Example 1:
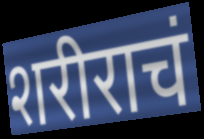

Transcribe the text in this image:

शरीराचं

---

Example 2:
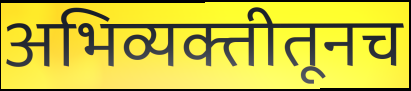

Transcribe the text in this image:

अभिव्यक्तीतूनच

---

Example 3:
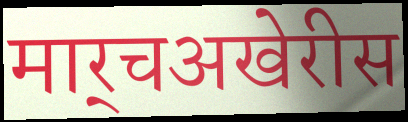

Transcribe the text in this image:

मार्चअखेरीस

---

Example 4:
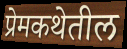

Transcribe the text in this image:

प्रेमकथेतील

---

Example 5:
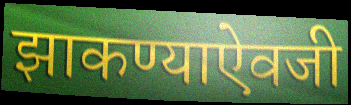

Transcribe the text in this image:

झाकण्याऐवजी